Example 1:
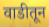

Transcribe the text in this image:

वाडीतून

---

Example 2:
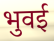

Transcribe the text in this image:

भुवई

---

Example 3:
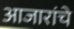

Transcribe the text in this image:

आजारांचे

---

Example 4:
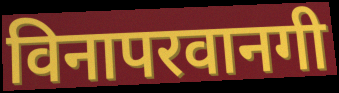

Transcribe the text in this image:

विनापरवानगी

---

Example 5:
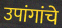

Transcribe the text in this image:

उपांगांचे